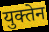
युक्तेन